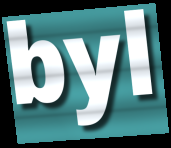
byl